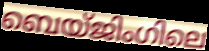
ബെയ്ജിംഗിലെ